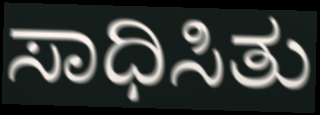
ಸಾಧಿಸಿತು